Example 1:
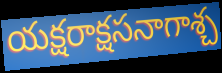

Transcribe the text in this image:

యక్షరాక్షసనాగాశ్చ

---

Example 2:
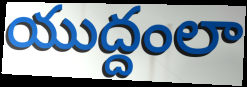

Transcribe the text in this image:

యుద్దంలా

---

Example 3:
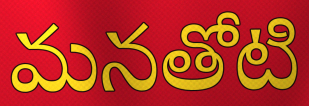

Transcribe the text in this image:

మనతోటి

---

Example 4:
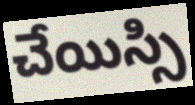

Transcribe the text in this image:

చేయిస్సి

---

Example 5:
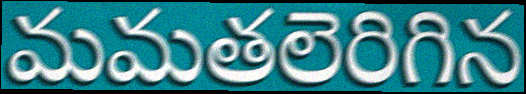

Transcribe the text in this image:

మమతలెరిగిన